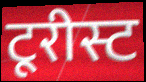
टूरीस्ट